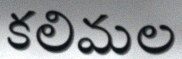
కలిమల